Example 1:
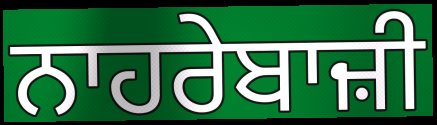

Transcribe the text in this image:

ਨਾਹਰੇਬਾਜ਼ੀ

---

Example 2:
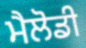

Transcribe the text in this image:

ਮੈਲੋਡੀ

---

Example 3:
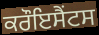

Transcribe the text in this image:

ਕਰੌਇਸੈਂਟਸ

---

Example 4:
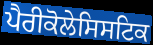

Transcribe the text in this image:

ਪੈਰੀਕੋਲੇਸਿਸਟਿਕ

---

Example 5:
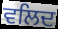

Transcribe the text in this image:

ਵਲਿਦ